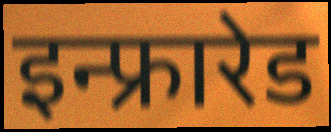
इन्फ्रारेड